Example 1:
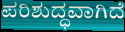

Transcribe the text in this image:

ಪರಿಶುದ್ಧವಾಗಿದೆ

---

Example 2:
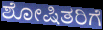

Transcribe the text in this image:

ಶೋಷಿತರಿಗೆ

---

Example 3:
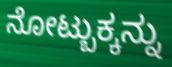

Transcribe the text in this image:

ನೋಟ್ಬುಕ್ಕನ್ನು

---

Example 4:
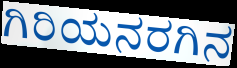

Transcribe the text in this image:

ಗಿರಿಯನರಗಿನ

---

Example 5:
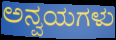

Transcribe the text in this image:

ಅನ್ವಯಗಳು